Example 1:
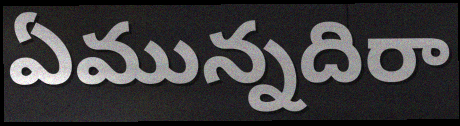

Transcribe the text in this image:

ఏమున్నదిరా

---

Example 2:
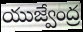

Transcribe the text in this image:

యుజ్వేంద్ర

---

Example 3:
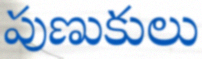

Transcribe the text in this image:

పుణుకులు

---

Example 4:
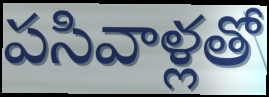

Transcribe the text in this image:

పసివాళ్లతో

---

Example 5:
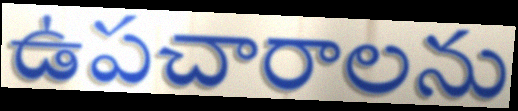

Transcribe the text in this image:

ఉపచారాలను